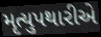
મૃત્યુપથારીએ